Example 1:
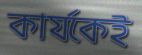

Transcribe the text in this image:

কার্যকেই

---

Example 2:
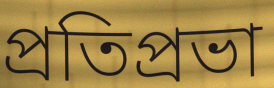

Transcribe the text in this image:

প্রতিপ্রভা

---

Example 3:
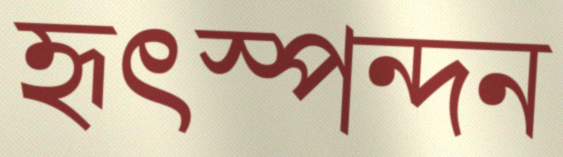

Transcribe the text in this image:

হৃৎস্পন্দন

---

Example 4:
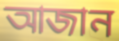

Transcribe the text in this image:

আজান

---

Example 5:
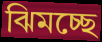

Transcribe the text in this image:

ঝিমচ্ছে